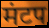
मंटप